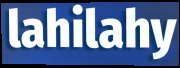
lahilahy